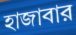
হাজাবার